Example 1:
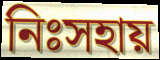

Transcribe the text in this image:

নিঃসহায়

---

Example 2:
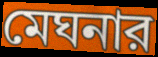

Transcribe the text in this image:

মেঘনার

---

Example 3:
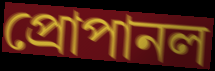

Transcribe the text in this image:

প্রোপানল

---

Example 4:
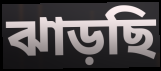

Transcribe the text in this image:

ঝাড়ছি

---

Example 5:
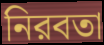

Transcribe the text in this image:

নিরবতা